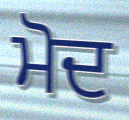
ਮੋਦ